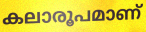
കലാരൂപമാണ്